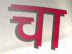
चा